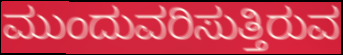
ಮುಂದುವರಿಸುತ್ತಿರುವ